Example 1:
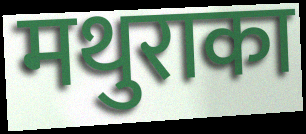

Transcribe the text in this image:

मथुराका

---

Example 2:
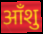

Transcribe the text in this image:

आँशु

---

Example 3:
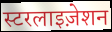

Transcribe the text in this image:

स्टरलाइज़ेशन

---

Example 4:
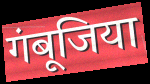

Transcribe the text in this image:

गंबूजिया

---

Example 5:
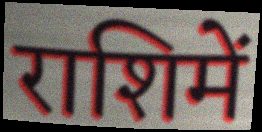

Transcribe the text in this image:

राशिमें